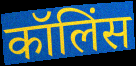
कॉलिंस